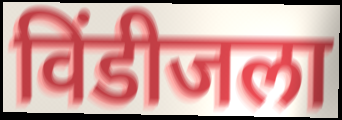
विंडीजला